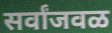
सर्वांजवळ